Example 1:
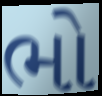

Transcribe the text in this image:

ભો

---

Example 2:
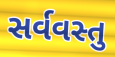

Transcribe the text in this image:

સર્વવસ્તુ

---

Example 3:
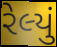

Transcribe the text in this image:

રેલ્યું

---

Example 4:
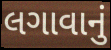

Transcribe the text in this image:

લગાવાનું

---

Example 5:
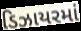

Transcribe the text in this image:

ડિઝાયરમાં